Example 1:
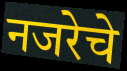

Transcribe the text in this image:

नजरेचे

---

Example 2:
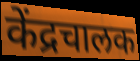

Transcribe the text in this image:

केंद्रचालक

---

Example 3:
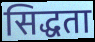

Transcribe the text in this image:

सिद्धता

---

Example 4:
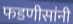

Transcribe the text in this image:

फडणीसांनी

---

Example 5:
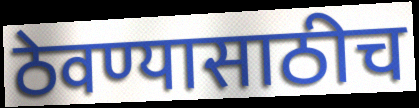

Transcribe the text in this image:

ठेवण्यासाठीच